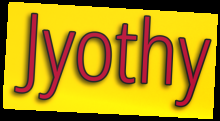
Jyothy